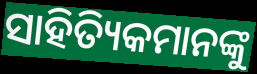
ସାହିତ୍ୟିକମାନଙ୍କୁ